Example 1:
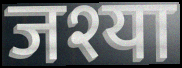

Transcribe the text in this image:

जश्या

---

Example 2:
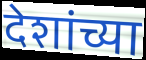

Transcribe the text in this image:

देशांच्या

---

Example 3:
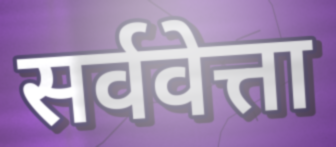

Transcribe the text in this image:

सर्ववेत्ता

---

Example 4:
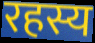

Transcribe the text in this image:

रहस्य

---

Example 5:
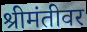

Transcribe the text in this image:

श्रीमंतीवर